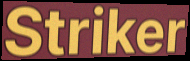
Striker